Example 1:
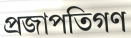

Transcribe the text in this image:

প্রজাপতিগণ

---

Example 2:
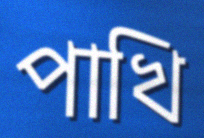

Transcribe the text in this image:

পাখি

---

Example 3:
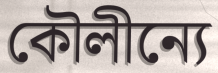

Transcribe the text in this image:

কৌলীন্যে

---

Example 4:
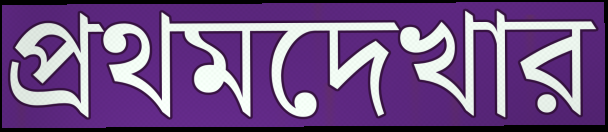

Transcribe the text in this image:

প্রথমদেখার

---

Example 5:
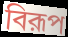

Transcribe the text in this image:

বিরূপ